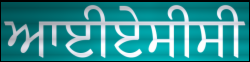
ਆਈਏਸੀਸੀ